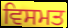
ਵਿਸਮਤ